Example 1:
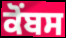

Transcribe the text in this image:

ਕੋਂਬਸ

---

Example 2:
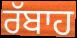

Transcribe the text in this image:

ਰੱਬਾਹ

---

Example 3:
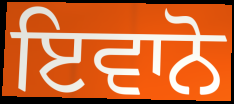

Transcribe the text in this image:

ਇਵਾਨੋ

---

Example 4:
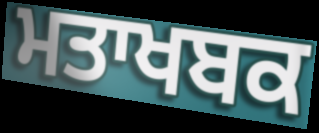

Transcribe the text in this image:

ਮਤਾਖਬਕ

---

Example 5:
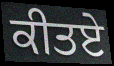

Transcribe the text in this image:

ਕੀਤਏ